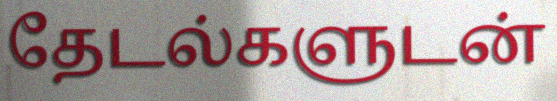
தேடல்களுடன்